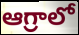
ఆగ్రాలో